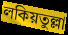
লকিয়তুল্লা